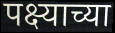
पक्ष्याच्या